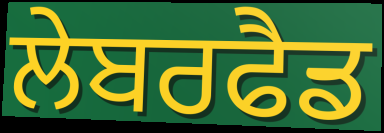
ਲੇਬਰਫੈਡ